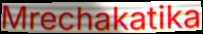
Mrechakatika